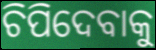
ଚିପିଦେବାକୁ